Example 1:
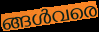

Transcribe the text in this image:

ങ്ങൾവരെ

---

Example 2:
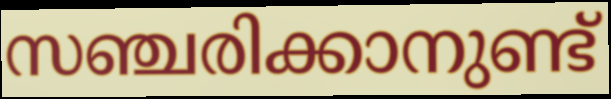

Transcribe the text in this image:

സഞ്ചരിക്കാനുണ്ട്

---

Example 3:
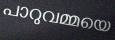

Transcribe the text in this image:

പാറുവമ്മയെ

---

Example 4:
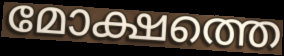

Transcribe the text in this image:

മോക്ഷത്തെ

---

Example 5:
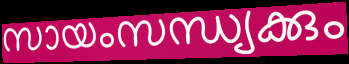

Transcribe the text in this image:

സായംസന്ധ്യക്കും